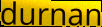
durnan